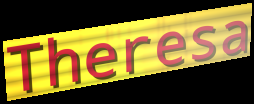
Theresa